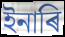
ইনাৰি